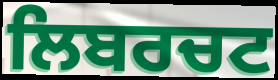
ਲਿਬਰਚਟ